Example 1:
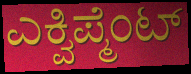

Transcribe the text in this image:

ಎಕ್ವಿಪ್ಮೆಂಟ್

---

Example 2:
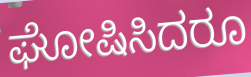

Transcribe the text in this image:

ಘೋಷಿಸಿದರೂ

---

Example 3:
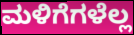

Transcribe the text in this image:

ಮಳಿಗೆಗಳೆಲ್ಲ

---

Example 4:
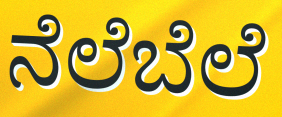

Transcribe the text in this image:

ನೆಲೆಬೆಲೆ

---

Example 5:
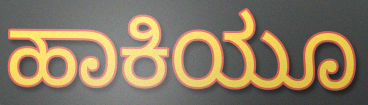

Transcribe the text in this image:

ಹಾಕಿಯೂ